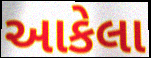
આકેલા